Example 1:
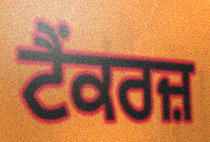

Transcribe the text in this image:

ਟੈਂਕਰਜ਼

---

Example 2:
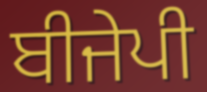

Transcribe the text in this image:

ਬੀਜੇਪੀ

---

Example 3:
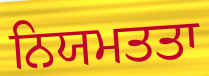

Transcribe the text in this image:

ਨਿਯਮਤਤਾ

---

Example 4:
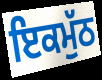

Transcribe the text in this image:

ਇਕਮੁੱਠ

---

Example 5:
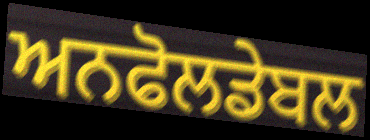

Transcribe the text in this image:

ਅਨਫੋਲਡੇਬਲ